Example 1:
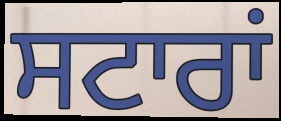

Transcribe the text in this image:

ਸਟਾਰਾਂ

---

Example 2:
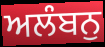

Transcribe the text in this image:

ਅਲੰਬਨੁ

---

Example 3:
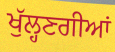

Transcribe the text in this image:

ਖੁੱਲ੍ਹਣਗੀਆਂ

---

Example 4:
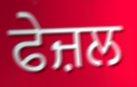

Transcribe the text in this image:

ਫੇਜ਼ਲ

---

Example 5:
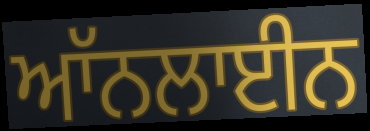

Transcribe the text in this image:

ਆੱਨਲਾਈਨ